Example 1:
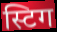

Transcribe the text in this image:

स्टिग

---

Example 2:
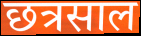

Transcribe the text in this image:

छत्रसाल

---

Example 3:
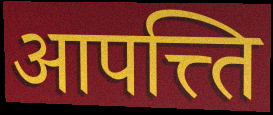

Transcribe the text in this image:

आपत्त्ति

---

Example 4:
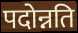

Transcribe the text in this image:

पदोन्नति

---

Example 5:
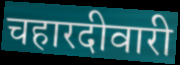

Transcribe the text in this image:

चहारदीवारी